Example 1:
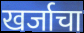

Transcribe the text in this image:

खर्जाचा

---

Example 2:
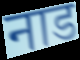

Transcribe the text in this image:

नाड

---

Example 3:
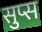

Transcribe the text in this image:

सुप्स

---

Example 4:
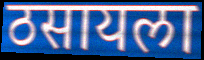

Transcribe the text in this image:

ठसायला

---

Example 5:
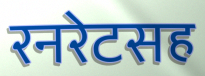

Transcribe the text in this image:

रनरेटसह